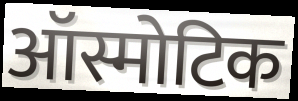
ऑस्मोटिक